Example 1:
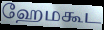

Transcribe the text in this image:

ஹேமகூட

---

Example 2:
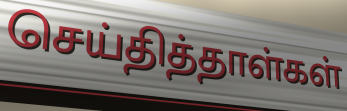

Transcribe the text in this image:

செய்தித்தாள்கள்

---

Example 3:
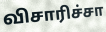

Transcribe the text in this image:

விசாரிச்சா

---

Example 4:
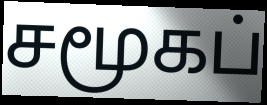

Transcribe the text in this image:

சமூகப்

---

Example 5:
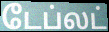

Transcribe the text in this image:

டேப்லட்